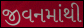
જીવનમાંથી